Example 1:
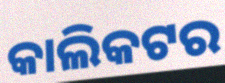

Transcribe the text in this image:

କାଲିକଟର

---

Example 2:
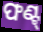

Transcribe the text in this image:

ଫଣ୍ଟ୍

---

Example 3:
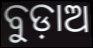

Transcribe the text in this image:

ବୁଡ଼ାଅ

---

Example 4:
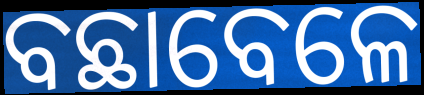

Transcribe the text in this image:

ବଛାବେଳେ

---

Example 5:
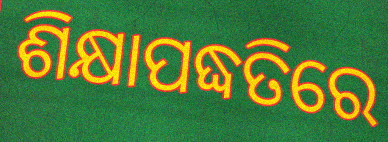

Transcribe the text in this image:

ଶିକ୍ଷାପଦ୍ଧତିରେ